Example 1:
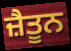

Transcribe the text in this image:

ਜ਼ੈਤੂਨ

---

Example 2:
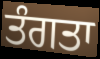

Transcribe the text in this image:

ਤੰਗਤਾ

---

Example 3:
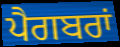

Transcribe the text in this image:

ਪੈਗਬਰਾਂ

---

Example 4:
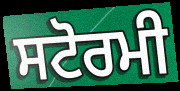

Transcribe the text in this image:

ਸਟੋਰਮੀ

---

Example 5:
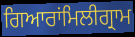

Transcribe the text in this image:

ਗਿਆਰਾਂਮਿਲੀਗ੍ਰਾਮ